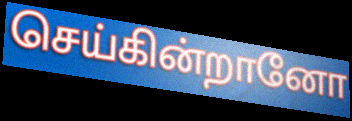
செய்கின்றானோ